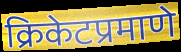
क्रिकेटप्रमाणे